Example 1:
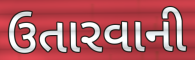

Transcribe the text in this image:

ઉતારવાની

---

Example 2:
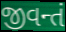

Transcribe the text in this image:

જીવન્તં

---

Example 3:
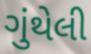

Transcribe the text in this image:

ગુંથેલી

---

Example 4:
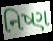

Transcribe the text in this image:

નિષ્ણ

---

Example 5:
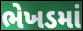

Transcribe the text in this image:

ભેખડમાં